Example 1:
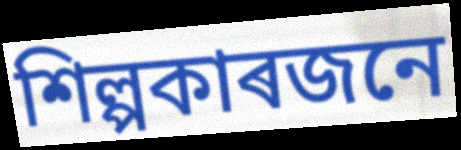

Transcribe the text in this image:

শিল্পকাৰজনে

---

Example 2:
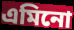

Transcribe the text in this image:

এমিনো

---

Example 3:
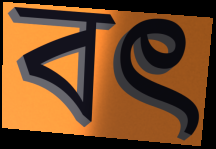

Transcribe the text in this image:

বৎ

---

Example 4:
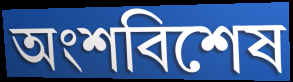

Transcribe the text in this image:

অংশবিশেষ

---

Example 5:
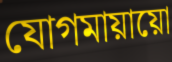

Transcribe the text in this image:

যোগমায়ায়ো